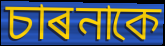
চাৰনাকে